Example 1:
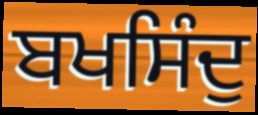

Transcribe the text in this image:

ਬਖਸਿੰਦੁ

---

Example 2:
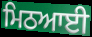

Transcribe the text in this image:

ਮਿਠਆਈ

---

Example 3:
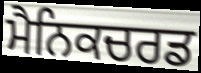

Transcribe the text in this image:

ਮੈਨਿਕਚਰਡ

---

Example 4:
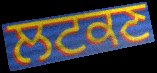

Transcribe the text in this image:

ਲਟਕਣ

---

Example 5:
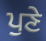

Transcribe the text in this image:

ਪੁਣੇ